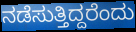
ನಡೆಸುತ್ತಿದ್ದರೆಂದು